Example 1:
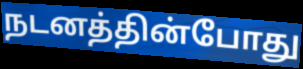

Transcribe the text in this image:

நடனத்தின்போது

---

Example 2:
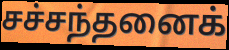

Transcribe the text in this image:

சச்சந்தனைக்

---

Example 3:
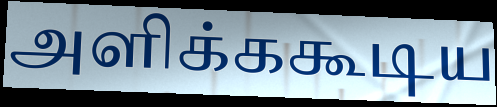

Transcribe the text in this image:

அளிக்ககூடிய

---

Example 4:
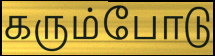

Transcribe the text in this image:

கரும்போடு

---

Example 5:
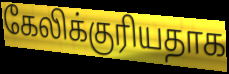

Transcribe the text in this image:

கேலிக்குரியதாக